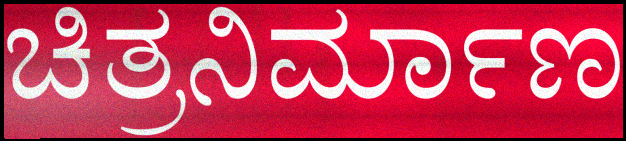
ಚಿತ್ರನಿರ್ಮಾಣ